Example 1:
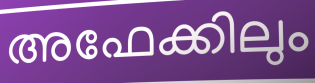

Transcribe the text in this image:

അഫേക്കിലും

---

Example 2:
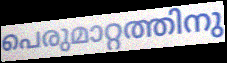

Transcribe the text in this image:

പെരുമാറ്റത്തിനു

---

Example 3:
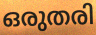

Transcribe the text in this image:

ഒരുതരി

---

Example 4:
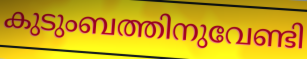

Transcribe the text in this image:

കുടുംബത്തിനുവേണ്ടി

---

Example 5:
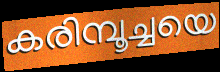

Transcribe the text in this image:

കരിമ്പൂച്ചയെ